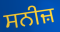
ਸਨੀਜ਼